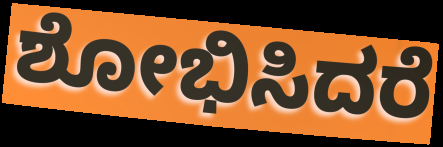
ಶೋಭಿಸಿದರೆ